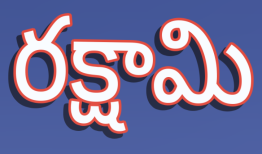
రక్షామి